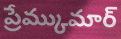
ప్రేమ్కుమార్